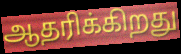
ஆதரிக்கிறது